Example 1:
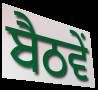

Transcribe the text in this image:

ਬੈਠਵੇਂ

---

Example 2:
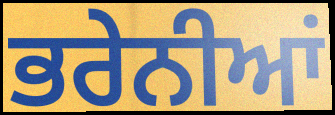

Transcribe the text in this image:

ਭਰੇਨੀਆਂ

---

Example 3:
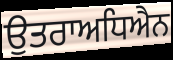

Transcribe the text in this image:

ਉਤਰਾਅਧਿਐਨ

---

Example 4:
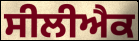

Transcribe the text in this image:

ਸੀਲੀਐਕ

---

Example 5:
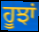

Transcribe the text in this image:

ਹੂਝਾਂ